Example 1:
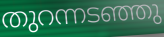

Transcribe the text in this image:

തുറന്നടഞ്ഞു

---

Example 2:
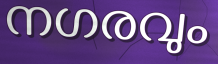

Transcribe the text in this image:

നഗരവും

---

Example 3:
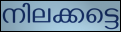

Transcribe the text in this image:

നിലക്കട്ടെ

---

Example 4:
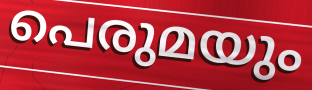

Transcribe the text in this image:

പെരുമയും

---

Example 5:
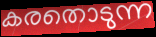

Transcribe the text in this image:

കരതൊടുന്ന